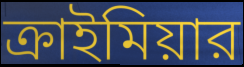
ক্রাইমিয়ার